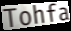
Tohfa